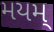
મયમ્